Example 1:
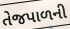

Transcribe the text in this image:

તેજપાળની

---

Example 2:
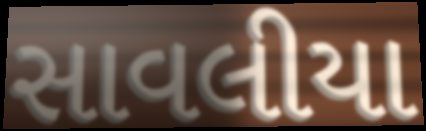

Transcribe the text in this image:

સાવલીયા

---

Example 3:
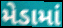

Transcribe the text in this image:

મેડામાં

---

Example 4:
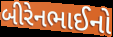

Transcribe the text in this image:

બીરેનભાઈનો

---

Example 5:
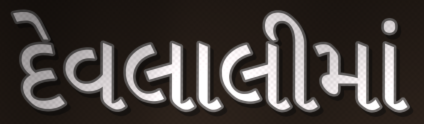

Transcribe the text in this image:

દેવલાલીમાં